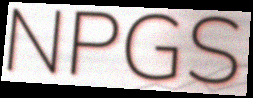
NPGS